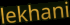
lekhani